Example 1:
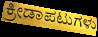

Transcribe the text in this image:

ಕ್ರೀಡಾಪಟುಗಳು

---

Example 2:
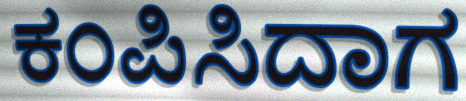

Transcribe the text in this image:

ಕಂಪಿಸಿದಾಗ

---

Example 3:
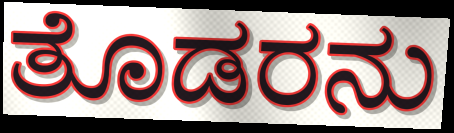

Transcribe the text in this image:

ತೊಡರನು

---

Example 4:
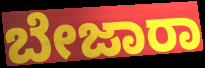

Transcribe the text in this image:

ಬೇಜಾರಾ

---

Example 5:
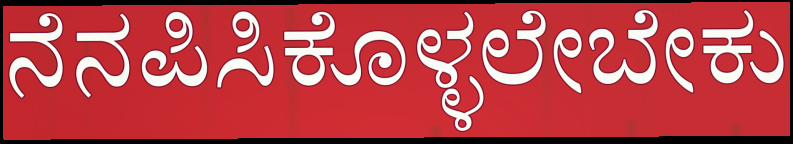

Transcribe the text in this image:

ನೆನಪಿಸಿಕೊಳ್ಳಲೇಬೇಕು